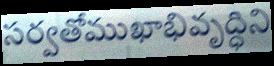
సర్వతోముఖాభివృద్ధిని